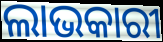
ଲାଭକାରୀ